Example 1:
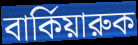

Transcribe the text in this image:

বার্কিয়ারুক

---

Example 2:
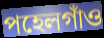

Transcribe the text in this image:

পহেলগাঁও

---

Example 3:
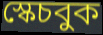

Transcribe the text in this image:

স্কেচবুক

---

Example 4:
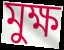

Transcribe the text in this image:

মুক্ষ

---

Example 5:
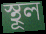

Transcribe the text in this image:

স্থূল